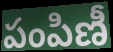
పంపిణీ